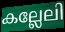
കല്ലേലി